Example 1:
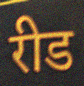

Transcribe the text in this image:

रीड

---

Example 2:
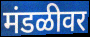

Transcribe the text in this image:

मंडळीवर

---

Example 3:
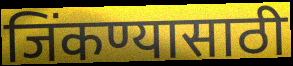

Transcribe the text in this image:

जिंकण्यासाठी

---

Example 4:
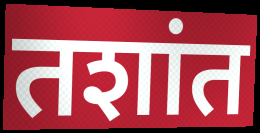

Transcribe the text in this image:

तशांत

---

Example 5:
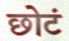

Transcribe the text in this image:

छोटं